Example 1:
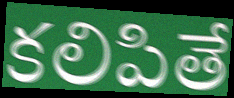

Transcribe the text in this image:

కలిపితే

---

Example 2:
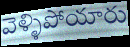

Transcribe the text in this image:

వెళ్ళిపోయారు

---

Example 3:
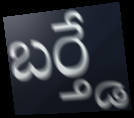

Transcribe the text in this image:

బర్త్డే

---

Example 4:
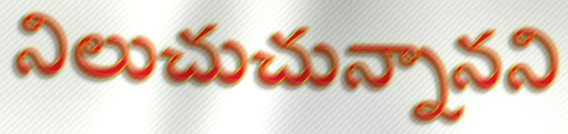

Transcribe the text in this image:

నిలుచుచున్నానని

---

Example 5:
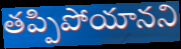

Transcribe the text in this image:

తప్పిపోయానని